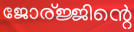
ജോര്ജ്ജിന്റെ